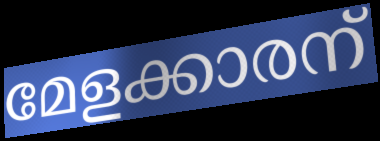
മേളക്കാരന്